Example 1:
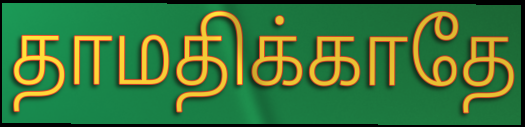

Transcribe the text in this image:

தாமதிக்காதே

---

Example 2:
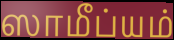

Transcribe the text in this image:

ஸாமீப்யம்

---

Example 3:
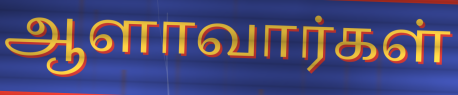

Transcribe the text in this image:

ஆளாவார்கள்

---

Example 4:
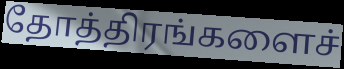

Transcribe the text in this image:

தோத்திரங்களைச்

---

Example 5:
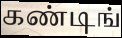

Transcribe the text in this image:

கண்டிங்